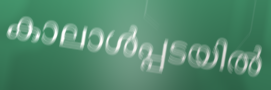
കാലാൾപ്പടയിൽ